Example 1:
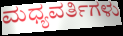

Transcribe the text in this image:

ಮಧ್ಯವರ್ತಿಗಳು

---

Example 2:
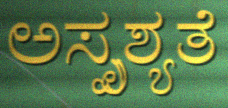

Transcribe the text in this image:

ಅಸ್ಪೃಶ್ಯತೆ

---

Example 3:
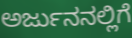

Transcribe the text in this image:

ಅರ್ಜುನನಲ್ಲಿಗೆ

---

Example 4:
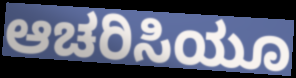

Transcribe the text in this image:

ಆಚರಿಸಿಯೂ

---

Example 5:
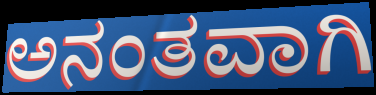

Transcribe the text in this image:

ಅನಂತವಾಗಿ